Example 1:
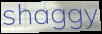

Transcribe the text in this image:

shaggy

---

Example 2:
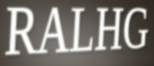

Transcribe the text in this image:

RALHG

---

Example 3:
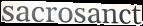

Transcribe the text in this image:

sacrosanct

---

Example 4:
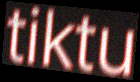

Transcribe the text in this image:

tiktu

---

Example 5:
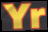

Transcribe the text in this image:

Yr